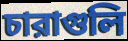
চারাগুলি